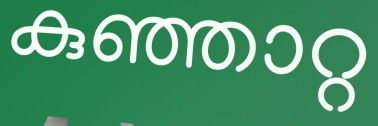
കുഞ്ഞാറ്റ